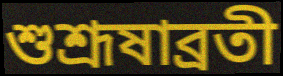
শুশ্রূষাব্রতী